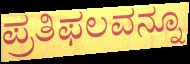
ಪ್ರತಿಫಲವನ್ನೂ